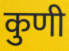
कुणी